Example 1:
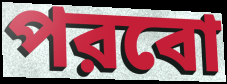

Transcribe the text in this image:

পরবো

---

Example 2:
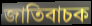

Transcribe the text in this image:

জাতিবাচক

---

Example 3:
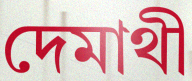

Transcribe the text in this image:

দেমাথী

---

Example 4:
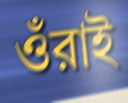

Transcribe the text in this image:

ওঁরাই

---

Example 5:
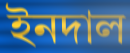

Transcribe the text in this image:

ইনদাল